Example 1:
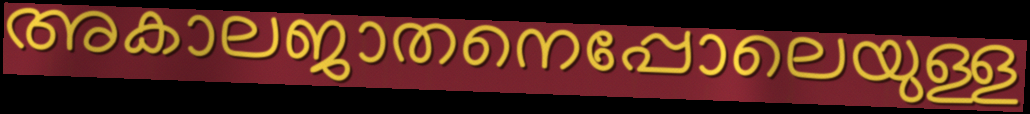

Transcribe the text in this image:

അകാലജാതനെപ്പോലെയുള്ള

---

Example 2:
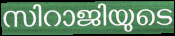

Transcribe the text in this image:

സിറാജിയുടെ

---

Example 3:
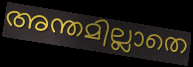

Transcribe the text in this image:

അന്തമില്ലാതെ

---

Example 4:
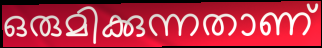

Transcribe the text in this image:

ഒരുമിക്കുന്നതാണ്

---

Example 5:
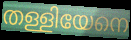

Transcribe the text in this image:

തള്ളിയേനെ